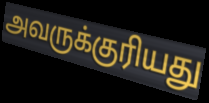
அவருக்குரியது